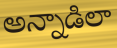
అన్నాడిలా